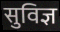
सुविज्ञ